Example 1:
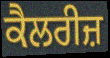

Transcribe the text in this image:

ਕੈਲਰੀਜ਼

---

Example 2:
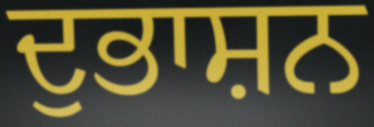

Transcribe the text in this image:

ਦੁਭਾਸ਼ਨ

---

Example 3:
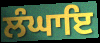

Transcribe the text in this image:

ਲੰਘਾਇ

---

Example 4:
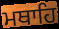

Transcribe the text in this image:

ਮਥਾਹਿ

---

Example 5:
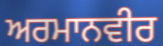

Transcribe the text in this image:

ਅਰਮਾਨਵੀਰ